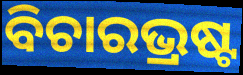
ବିଚାରଭ୍ରଷ୍ଟ